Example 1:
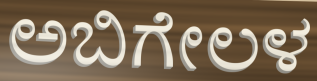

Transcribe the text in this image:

ಅಬಿಗೇಲಳ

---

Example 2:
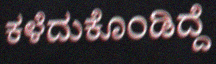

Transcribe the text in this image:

ಕಳೆದುಕೊಂಡಿದ್ದೆ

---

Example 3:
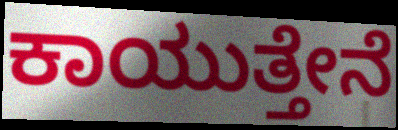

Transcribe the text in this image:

ಕಾಯುತ್ತೇನೆ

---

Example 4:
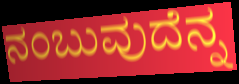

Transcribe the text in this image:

ನಂಬುವುದೆನ್ನ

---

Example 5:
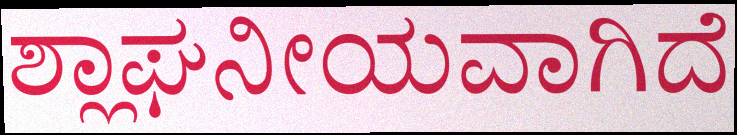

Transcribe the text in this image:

ಶ್ಲಾಘನೀಯವಾಗಿದೆ